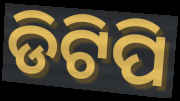
ଡିଟିପି